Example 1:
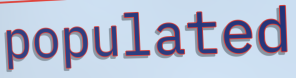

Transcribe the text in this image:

populated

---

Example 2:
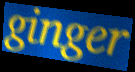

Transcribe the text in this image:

ginger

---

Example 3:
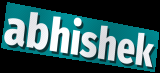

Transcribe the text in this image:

abhishek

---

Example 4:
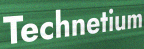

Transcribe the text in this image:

Technetium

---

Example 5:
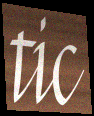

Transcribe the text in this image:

tic